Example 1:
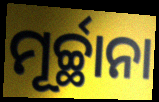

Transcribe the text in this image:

ମୂର୍ଚ୍ଛାନା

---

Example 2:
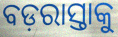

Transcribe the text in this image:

ବଡ଼ରାସ୍ତାକୁ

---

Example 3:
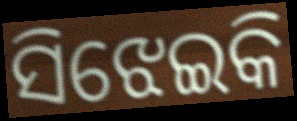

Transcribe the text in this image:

ସିଝେଇକି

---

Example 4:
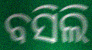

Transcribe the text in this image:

ବସିଲି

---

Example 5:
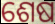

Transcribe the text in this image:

ଶେଷ